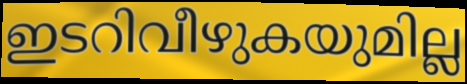
ഇടറിവീഴുകയുമില്ല